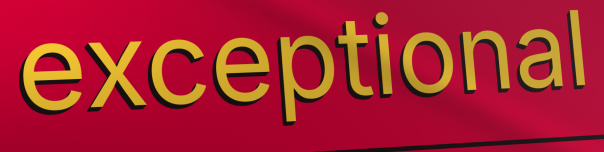
exceptional